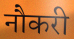
नौकरी